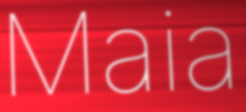
Maia